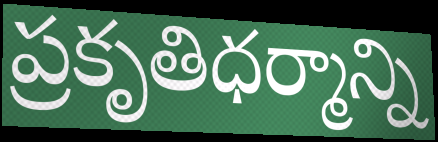
ప్రకృతిధర్మాన్ని